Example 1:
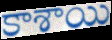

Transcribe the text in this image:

కాశాయి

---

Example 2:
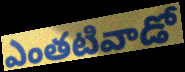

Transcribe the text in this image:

ఎంతటివాడో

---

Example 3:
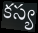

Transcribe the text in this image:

కస్య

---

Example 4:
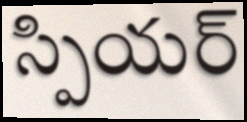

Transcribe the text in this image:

స్పియర్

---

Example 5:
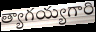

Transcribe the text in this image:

త్యాగయ్యగారి